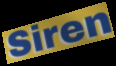
Siren